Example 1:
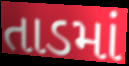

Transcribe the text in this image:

તાડમાં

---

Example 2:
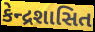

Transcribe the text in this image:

કેન્દ્રશાસિત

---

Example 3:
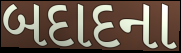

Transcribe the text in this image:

બદાદના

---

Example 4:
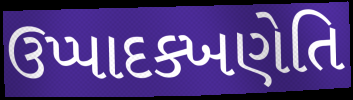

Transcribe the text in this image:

ઉપ્પાદક્ખણેતિ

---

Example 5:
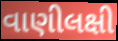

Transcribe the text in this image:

વાણીલક્ષી